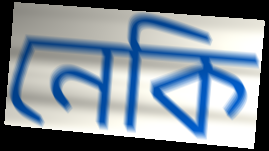
নেকি